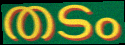
തടം